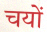
चयों